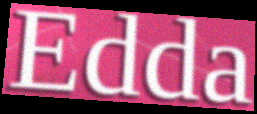
Edda